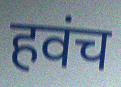
हवंच